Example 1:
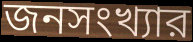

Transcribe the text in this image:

জনসংখ্যার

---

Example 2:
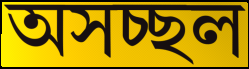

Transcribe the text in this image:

অসচ্ছল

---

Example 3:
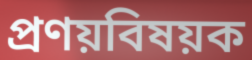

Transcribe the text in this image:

প্রণয়বিষয়ক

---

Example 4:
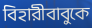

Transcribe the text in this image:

বিহারীবাবুকে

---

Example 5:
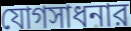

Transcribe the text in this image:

যোগসাধনার